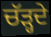
ਚੱੜ੍ਹਦੇ